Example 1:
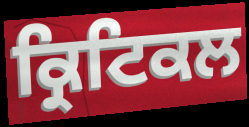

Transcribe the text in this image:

ਕ੍ਰਿਟਿਕਲ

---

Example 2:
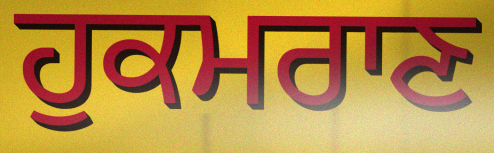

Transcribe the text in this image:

ਹੁਕਮਰਾਣ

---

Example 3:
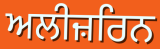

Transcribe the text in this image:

ਅਲੀਜ਼ਰਿਨ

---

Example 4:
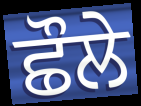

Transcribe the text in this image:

ਛੌਲੇ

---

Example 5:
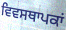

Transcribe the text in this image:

ਵਿਵਸਥਾਪਕਾਂ